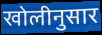
खोलीनुसार